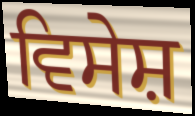
ਵਿਸੇਸ਼